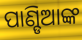
ପାଣ୍ଡିଆଙ୍କ